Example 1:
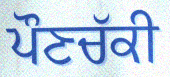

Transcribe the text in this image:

ਪੌਣਚੱਕੀ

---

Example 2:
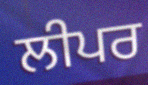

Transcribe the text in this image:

ਲੀਪਰ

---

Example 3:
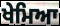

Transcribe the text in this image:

ਖੇਮਿਆ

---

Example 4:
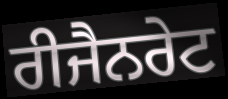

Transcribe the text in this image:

ਰੀਜੈਨਰੇਟ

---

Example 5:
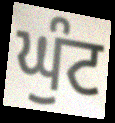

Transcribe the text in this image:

ਘੁੰਟ